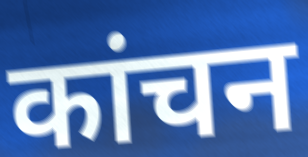
कांचन